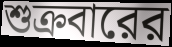
শুক্রবারের